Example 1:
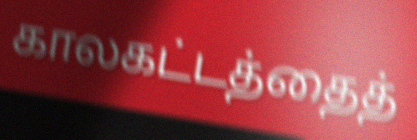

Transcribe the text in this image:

காலகட்டத்தைத்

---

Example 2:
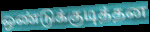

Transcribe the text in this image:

ஒண்டுக்குடித்தன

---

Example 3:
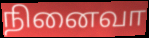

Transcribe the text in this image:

நினைவா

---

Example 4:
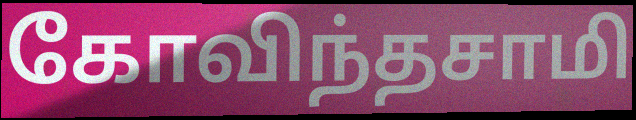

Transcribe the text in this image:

கோவிந்தசாமி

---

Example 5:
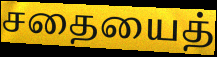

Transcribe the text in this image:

சதையைத்